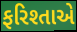
ફરિશ્તાએ